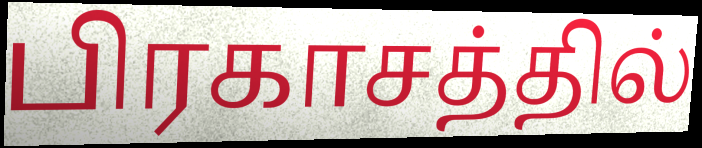
பிரகாசத்தில்